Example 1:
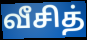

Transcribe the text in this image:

வீசித்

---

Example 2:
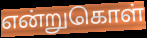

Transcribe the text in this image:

என்றுகொள்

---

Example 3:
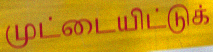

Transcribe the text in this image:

முட்டையிட்டுக்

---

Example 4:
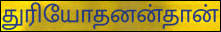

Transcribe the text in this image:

துரியோதனன்தான்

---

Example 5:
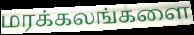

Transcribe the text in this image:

மரக்கலங்களை